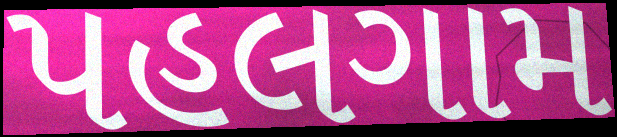
પહલગામ